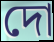
দো